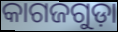
କାଗଜଗୁଡ଼ା